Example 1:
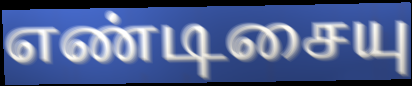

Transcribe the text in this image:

எண்டிசையு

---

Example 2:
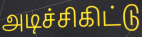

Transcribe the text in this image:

அடிச்சிகிட்டு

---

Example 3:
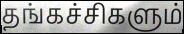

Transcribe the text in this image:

தங்கச்சிகளும்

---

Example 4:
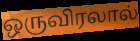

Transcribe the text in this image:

ஒருவிரலால்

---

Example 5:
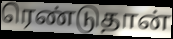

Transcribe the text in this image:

ரெண்டுதான்